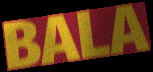
BALA